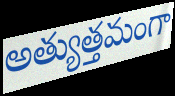
అత్యుత్తమంగా